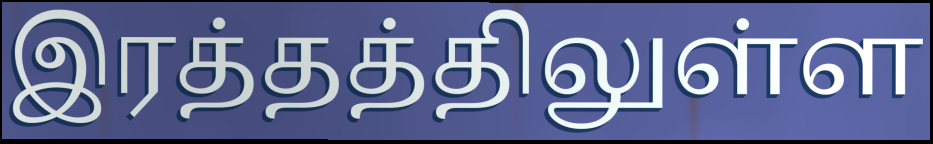
இரத்தத்திலுள்ள